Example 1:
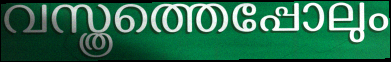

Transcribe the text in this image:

വസ്ത്രത്തെപ്പോലും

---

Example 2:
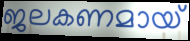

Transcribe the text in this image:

ജലകണമായ്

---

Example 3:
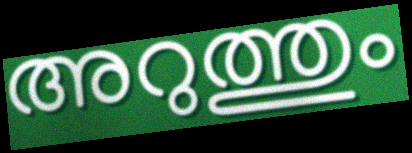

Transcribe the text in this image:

അറുത്തും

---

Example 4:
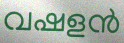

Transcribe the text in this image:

വഷളൻ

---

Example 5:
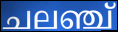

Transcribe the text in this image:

ചലഞ്ച്